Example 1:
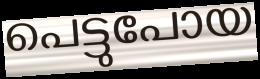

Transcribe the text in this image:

പെട്ടുപോയ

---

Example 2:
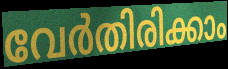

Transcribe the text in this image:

വേർതിരിക്കാം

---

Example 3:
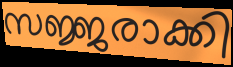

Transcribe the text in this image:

സജ്ജരാക്കി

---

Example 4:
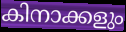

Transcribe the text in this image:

കിനാക്കളും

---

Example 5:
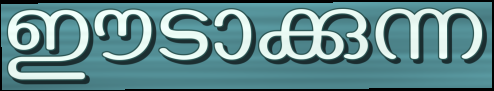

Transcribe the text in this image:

ഈടാക്കുന്ന